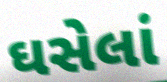
ઘસેલાં